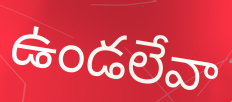
ఉండలేవా